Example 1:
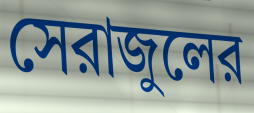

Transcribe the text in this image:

সেরাজুলের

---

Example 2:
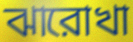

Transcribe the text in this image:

ঝারোখা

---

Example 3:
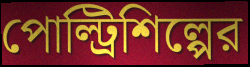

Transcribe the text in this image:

পোল্ট্রিশিল্পের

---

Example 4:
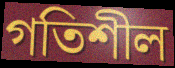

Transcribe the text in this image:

গতিশীল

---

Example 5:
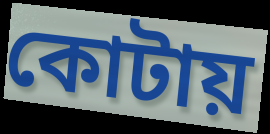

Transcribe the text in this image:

কোটায়